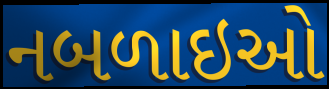
નબળાઇઓ